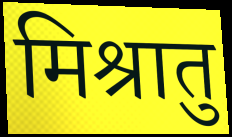
मिश्रातु